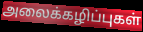
அலைக்கழிப்புகள்